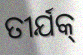
ତୀର୍ଯକ୍